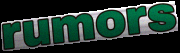
rumors